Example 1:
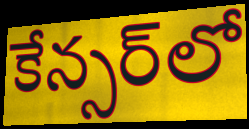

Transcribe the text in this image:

కేన్సర్‌లో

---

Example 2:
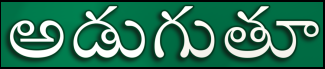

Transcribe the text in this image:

అడుగుతూ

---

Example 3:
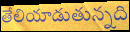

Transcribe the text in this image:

తేలియాడుతున్నది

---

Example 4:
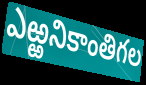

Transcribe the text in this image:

ఎఱ్ఱనికాంతిగల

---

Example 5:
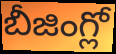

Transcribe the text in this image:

బీజింగ్లో